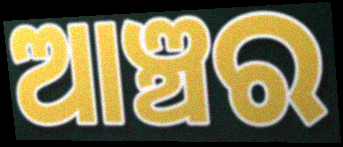
ଆଞ୍ଚର